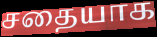
சதையாக